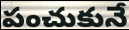
పంచుకునే